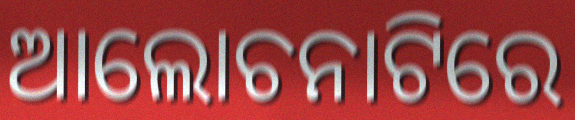
ଆଲୋଚନାଟିରେ